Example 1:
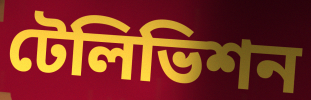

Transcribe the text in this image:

টেলিভিশন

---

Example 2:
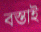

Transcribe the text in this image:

বস্তাই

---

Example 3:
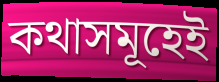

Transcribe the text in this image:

কথাসমূহেই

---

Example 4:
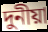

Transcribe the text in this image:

দুনীয়া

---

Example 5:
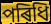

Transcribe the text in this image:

পৰিধি